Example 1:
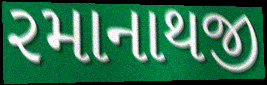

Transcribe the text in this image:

રમાનાથજી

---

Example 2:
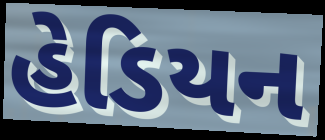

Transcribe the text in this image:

હેડિયન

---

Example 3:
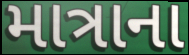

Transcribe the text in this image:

માત્રાના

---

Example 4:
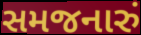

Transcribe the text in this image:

સમજનારું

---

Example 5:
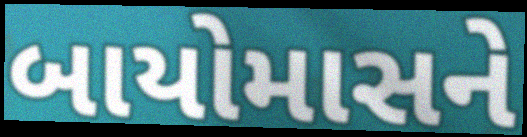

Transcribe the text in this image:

બાયોમાસને